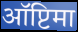
ऑप्टिमा